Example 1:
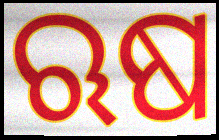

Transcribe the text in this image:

ଋଷ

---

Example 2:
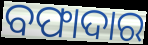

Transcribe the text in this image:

ବଫାଦାର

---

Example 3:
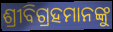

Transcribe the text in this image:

ଶ୍ରୀବିଗ୍ରହମାନଙ୍କୁ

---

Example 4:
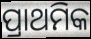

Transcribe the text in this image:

ପ୍ରାଥମିକ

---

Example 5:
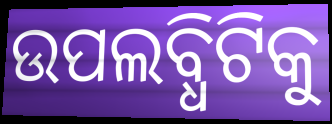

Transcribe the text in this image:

ଉପଲବ୍ଧିଟିକୁ